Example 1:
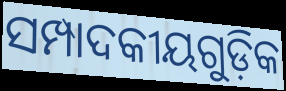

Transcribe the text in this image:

ସମ୍ପାଦକୀୟଗୁଡ଼ିକ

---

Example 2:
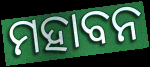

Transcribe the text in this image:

ମହାବନ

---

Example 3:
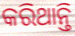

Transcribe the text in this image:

କରିଥାନ୍ତି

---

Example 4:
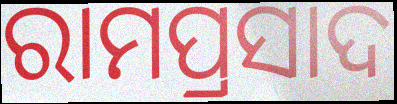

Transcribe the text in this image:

ରାମପ୍ରସାଦ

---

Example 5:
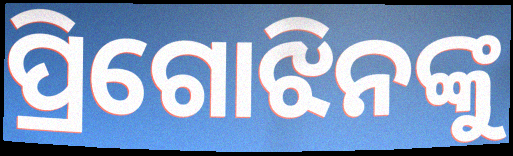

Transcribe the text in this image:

ପ୍ରିଗୋଝିନଙ୍କୁ